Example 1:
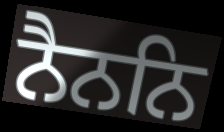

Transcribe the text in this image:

ਨੈਨਨਿ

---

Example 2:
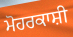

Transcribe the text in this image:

ਮੋਹਰਕਾਸ਼ੀ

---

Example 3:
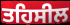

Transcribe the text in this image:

ਤਹਿਸੀਲ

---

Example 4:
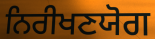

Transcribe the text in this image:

ਨਿਰੀਖਣਯੋਗ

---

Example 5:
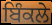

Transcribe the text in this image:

ਬਿੰਕਲੇ